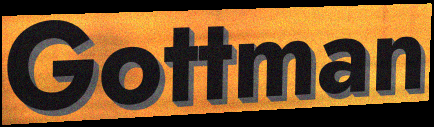
Gottman